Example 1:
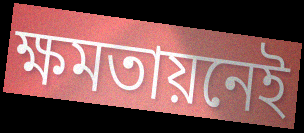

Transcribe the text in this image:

ক্ষমতায়নেই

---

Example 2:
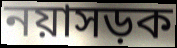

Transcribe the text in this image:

নয়াসড়ক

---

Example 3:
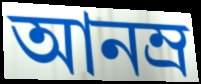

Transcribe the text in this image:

আনম্র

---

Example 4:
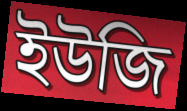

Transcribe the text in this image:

ইউজি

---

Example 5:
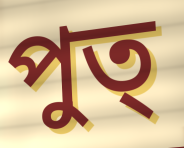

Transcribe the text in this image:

পুত্